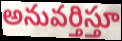
అనువర్తిస్తూ